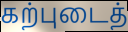
கற்புடைத்